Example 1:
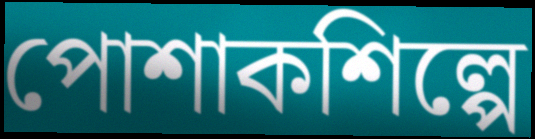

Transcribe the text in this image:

পোশাকশিল্পে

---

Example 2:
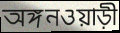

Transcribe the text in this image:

অঙ্গনওয়াড়ী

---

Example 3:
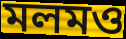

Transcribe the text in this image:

মলমও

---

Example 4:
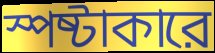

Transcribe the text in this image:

স্পষ্টাকারে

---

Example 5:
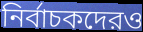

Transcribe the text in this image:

নির্বাচকদেরও